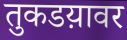
तुकडय़ावर